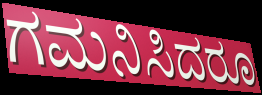
ಗಮನಿಸಿದರೂ